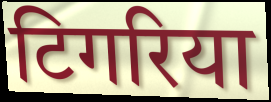
टिगरिया